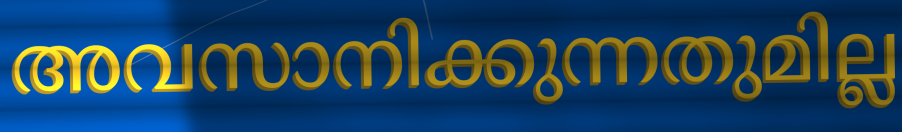
അവസാനിക്കുന്നതുമില്ല